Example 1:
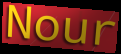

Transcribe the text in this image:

Nour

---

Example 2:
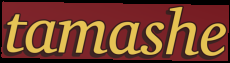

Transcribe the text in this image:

tamashe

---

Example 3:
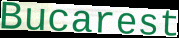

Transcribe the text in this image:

Bucarest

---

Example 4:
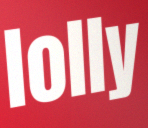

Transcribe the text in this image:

lolly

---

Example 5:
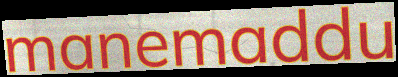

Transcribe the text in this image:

manemaddu